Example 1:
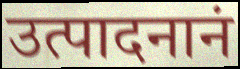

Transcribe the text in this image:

उत्पादनानं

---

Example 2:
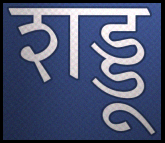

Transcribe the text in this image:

शड्डू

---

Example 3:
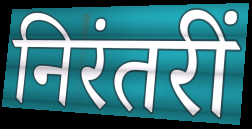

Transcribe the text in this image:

निरंतरीं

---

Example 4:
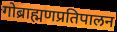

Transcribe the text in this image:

गोब्राह्मणप्रतिपालन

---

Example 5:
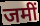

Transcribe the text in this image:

जमीं